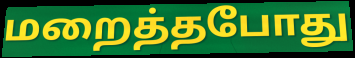
மறைத்தபோது